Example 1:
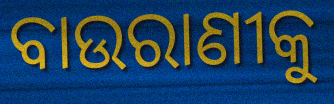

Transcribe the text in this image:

ବାଉରାଣୀକୁ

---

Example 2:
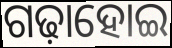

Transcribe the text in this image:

ଗଢ଼ାହୋଇ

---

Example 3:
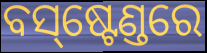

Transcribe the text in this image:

ବସ୍‌ଷ୍ଟେଣ୍ଡରେ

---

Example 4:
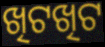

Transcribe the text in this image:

ଖିଟଖିଟ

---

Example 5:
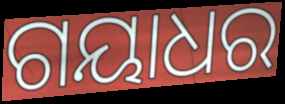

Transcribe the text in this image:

ଗୟାଧର